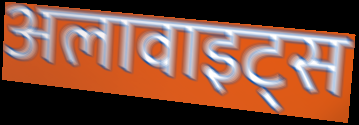
अलावाइट्स